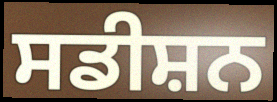
ਸਡੀਸ਼ਨ